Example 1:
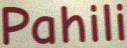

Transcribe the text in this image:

Pahili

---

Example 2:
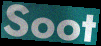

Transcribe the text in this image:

Soot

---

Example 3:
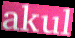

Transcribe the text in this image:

akul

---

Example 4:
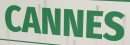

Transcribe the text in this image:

CANNES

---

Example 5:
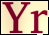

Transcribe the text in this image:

Yr